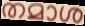
തമാശ